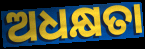
ଅଧକ୍ଷତା